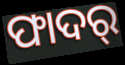
ଫାଦର୍